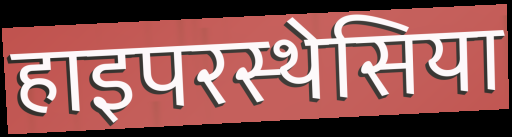
हाइपरस्थेसिया